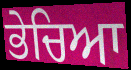
ਭੇਚਿਆ